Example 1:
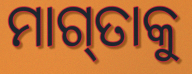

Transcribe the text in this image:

ମାଗ୍‌ତାକୁ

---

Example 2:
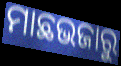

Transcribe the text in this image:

ମାଛଭଜାରୁ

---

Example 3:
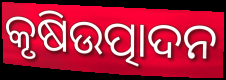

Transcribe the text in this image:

କୃଷିଉତ୍ପାଦନ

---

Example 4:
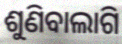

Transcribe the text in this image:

ଶୁଣିବାଲାଗି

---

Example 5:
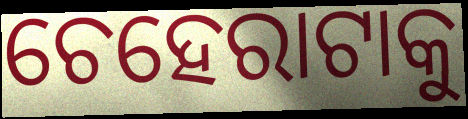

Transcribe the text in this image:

ଚେହେରାଟାକୁ